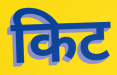
किट